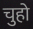
चुहो